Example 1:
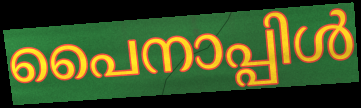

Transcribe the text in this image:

പൈനാപ്പിൾ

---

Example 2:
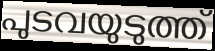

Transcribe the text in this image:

പുടവയുടുത്ത്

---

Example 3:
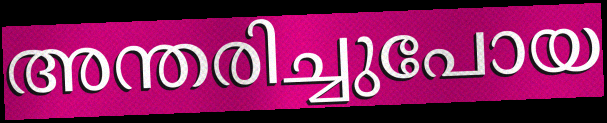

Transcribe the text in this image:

അന്തരിച്ചുപോയ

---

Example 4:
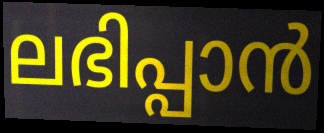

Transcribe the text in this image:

ലഭിപ്പാൻ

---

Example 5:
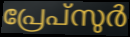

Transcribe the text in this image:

പ്രേപ്സുർ